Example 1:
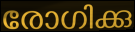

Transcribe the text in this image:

രോഗിക്കു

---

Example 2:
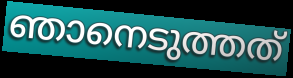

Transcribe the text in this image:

ഞാനെടുത്തത്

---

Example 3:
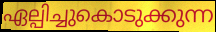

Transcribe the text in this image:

ഏല്പിച്ചുകൊടുക്കുന്ന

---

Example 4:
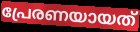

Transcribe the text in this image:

പ്രേരണയായത്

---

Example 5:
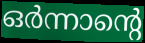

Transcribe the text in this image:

ഒർന്നാന്റെ